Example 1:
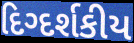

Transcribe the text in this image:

દિગ્દર્શકીય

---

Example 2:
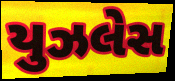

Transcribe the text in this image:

યુઝલેસ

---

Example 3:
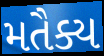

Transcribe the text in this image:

મતૈક્ય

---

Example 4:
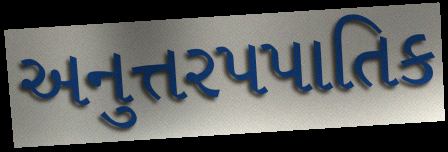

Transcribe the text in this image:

અનુત્તરપપાતિક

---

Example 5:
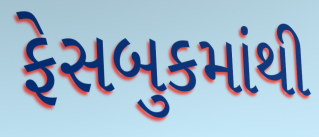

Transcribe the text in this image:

ફેસબુકમાંથી